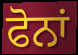
ਫੋਨਾਂ